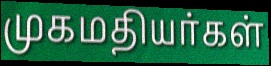
முகமதியர்கள்